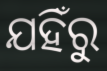
ଯହିଁରୁ